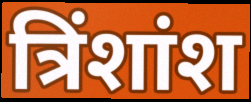
त्रिंशांश